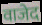
वाजेद